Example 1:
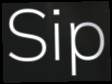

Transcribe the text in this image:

Sip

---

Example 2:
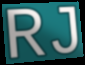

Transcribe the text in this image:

RJ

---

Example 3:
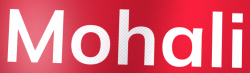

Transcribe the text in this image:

Mohali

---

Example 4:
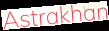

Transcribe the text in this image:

Astrakhan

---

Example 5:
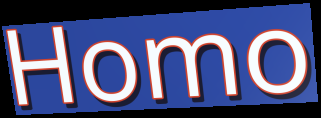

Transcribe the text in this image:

Homo